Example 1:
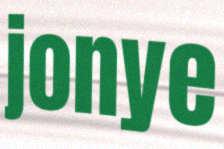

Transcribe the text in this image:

jonye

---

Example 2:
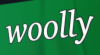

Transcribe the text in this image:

woolly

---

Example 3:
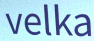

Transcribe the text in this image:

velka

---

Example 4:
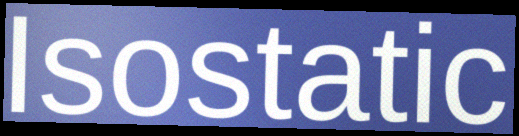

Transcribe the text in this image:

Isostatic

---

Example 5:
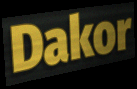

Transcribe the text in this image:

Dakor